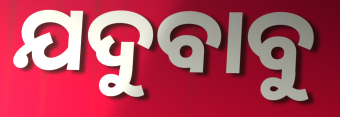
ଯଦୁବାବୁ